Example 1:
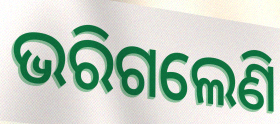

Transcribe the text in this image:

ଭରିଗଲେଣି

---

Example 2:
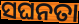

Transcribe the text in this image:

ସଘନତା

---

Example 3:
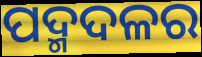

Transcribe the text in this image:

ପଦ୍ମଦଳର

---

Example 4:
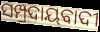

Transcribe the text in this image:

ସମ୍ପ୍ରଦାୟବାଦୀ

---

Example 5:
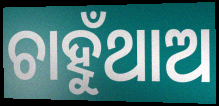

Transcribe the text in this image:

ଚାହୁଁଥାଅ